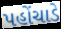
પહોંચાડે